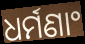
ଧର୍ମଣାଂ